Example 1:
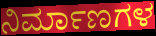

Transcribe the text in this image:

ನಿರ್ಮಾಣಗಳ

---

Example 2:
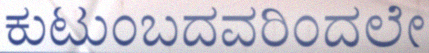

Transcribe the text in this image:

ಕುಟುಂಬದವರಿಂದಲೇ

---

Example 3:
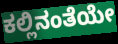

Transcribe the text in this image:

ಕಲ್ಲಿನಂತೆಯೇ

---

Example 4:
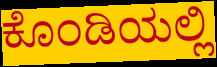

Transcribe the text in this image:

ಕೊಂಡಿಯಲ್ಲಿ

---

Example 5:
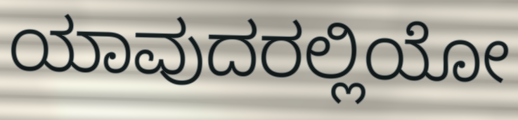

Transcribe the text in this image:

ಯಾವುದರಲ್ಲಿಯೋ